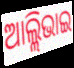
ଆଲ୍ଲିଭାଇ